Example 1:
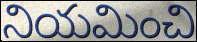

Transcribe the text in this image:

నియమించి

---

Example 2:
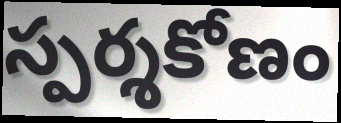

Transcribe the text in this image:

స్పర్శకోణం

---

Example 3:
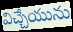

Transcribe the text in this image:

విచ్చేయును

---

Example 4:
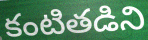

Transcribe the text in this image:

కంటితడిని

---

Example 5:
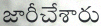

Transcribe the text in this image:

జారీచేశారు